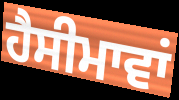
ਹੈਸੀਮਾਵਾਂ